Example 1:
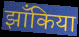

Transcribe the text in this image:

झाँकिया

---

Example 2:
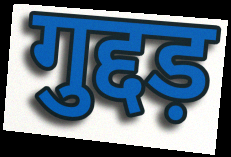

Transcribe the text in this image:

गुद्दड़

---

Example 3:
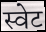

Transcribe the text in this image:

स्वेट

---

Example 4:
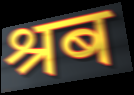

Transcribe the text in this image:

श्रब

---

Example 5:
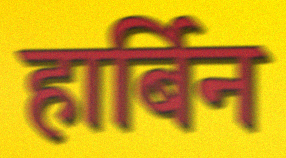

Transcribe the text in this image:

हार्बिन